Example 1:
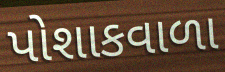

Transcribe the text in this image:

પોશાકવાળા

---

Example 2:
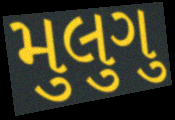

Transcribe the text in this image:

મુલુગુ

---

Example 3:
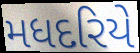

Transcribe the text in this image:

મધદરિયે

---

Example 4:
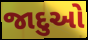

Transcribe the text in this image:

જાદુઓ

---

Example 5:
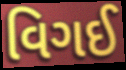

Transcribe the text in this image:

વિગઈ